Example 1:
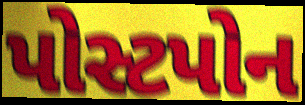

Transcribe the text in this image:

પોસ્ટપોન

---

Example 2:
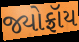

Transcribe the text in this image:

જ્યોફ્રૉય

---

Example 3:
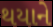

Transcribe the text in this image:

થયાને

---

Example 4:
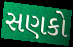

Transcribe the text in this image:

સણકો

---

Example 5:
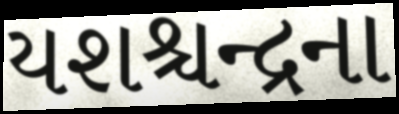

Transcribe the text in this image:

યશશ્ચન્દ્રના